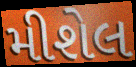
મીશેલ